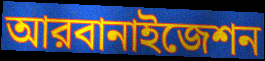
আরবানাইজেশন